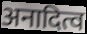
अनादित्व